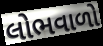
લોભવાળો